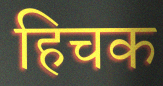
हिचक